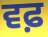
ਵਫ਼